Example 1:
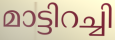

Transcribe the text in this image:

മാട്ടിറച്ചി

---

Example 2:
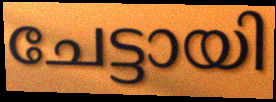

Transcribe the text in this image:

ചേട്ടായി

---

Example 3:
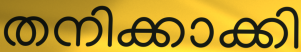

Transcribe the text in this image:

തനിക്കാക്കി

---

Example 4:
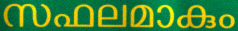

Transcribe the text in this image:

സഫലമാകും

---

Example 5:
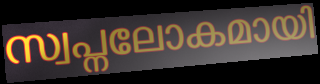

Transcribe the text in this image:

സ്വപ്നലോകമായി